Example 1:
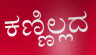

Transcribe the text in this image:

ಕಣ್ಣಿಲ್ಲದ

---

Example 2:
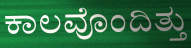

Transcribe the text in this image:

ಕಾಲವೊಂದಿತ್ತು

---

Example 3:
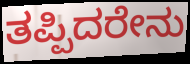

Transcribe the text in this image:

ತಪ್ಪಿದರೇನು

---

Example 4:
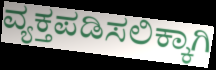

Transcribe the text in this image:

ವ್ಯಕ್ತಪಡಿಸಲಿಕ್ಕಾಗಿ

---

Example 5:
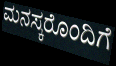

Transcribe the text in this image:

ಮನಸ್ಕರೊಂದಿಗೆ